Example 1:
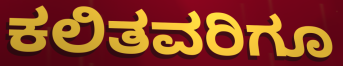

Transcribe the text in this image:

ಕಲಿತವರಿಗೂ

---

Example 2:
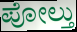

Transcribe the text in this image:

ಪೋಲ್ತು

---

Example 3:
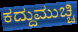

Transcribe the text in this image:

ಕದ್ದುಮುಚ್ಚಿ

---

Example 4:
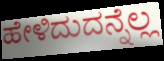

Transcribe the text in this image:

ಹೇಳಿದುದನ್ನೆಲ್ಲ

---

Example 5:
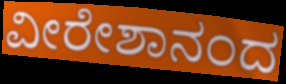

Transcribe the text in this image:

ವೀರೇಶಾನಂದ